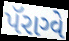
પૅરાગ્વે